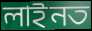
লাইনত